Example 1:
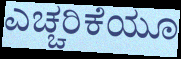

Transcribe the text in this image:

ಎಚ್ಚರಿಕೆಯೂ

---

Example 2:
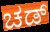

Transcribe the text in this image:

ಚಡ್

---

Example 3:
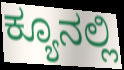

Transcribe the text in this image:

ಕ್ಯೂನಲ್ಲಿ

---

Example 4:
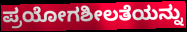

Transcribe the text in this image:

ಪ್ರಯೋಗಶೀಲತೆಯನ್ನು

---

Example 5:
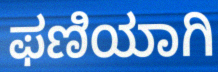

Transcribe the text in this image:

ಫಣಿಯಾಗಿ